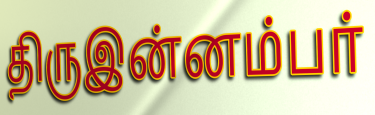
திருஇன்னம்பர்